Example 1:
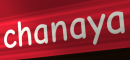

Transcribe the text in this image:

chanaya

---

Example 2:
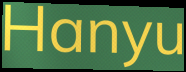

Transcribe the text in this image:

Hanyu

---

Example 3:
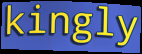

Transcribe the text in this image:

kingly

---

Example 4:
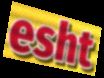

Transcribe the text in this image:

esht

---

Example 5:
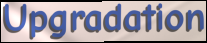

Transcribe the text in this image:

Upgradation